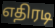
எதிரடி